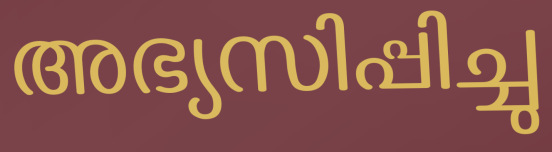
അഭ്യസിപ്പിച്ചു